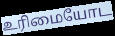
உரிமையோட